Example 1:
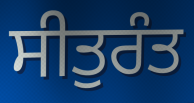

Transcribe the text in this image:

ਸੀਤੁਰੰਤ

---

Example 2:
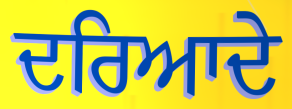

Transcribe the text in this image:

ਦਰਿਆਦੇ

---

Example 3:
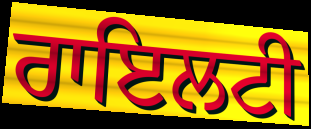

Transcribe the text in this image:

ਰਾਇਲਟੀ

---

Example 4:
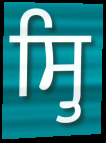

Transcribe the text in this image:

ਸ੍ਤਿ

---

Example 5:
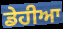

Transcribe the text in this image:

ਡੇਹੀਆ